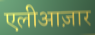
एलीआज़ार